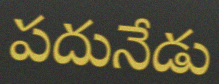
పదునేడు